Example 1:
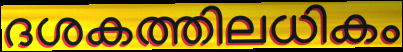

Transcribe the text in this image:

ദശകത്തിലധികം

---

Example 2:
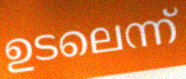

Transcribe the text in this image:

ഉടലെന്ന്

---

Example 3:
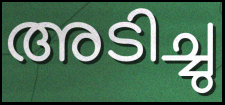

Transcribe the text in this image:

അടിച്ചു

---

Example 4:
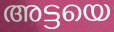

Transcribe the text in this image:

അട്ടയെ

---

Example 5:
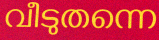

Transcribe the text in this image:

വീടുതന്നെ